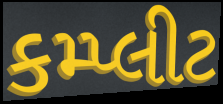
કમ્પ્લીટ